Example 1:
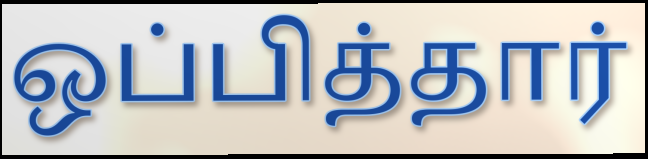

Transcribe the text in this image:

ஒப்பித்தார்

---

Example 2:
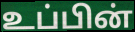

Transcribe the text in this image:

உப்பின்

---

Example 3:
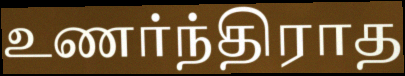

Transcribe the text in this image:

உணர்ந்திராத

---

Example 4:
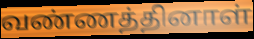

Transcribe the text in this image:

வண்ணத்தினாள்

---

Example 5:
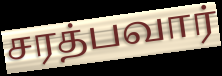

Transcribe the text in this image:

சரத்பவார்